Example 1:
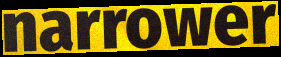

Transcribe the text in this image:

narrower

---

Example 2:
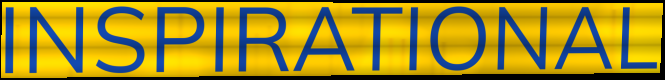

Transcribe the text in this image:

INSPIRATIONAL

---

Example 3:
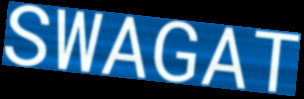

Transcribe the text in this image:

SWAGAT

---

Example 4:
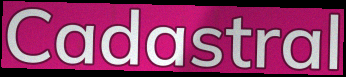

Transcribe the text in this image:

Cadastral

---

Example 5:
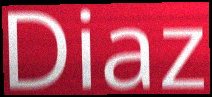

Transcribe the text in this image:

Diaz